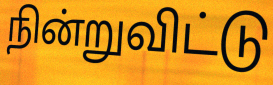
நின்றுவிட்டு